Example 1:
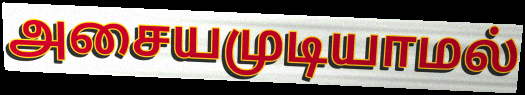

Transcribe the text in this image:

அசையமுடியாமல்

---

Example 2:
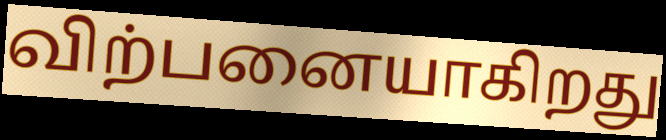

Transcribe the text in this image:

விற்பனையாகிறது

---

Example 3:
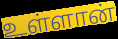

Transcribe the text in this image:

உள்ளான்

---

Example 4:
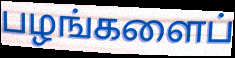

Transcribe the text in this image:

பழங்களைப்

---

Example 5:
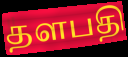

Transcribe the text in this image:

தளபதி